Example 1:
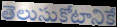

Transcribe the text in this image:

తెలుసుకోటానికే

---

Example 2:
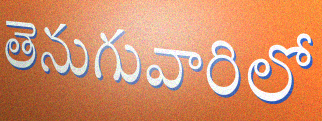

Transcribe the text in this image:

తెనుగువారిలో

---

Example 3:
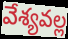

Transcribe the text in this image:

వేశ్యవల్ల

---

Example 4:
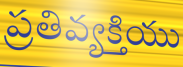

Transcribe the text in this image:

ప్రతివ్యక్తియు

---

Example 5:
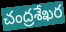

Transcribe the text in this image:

చంద్రశేఖర